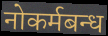
नोकर्मबन्ध